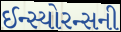
ઈન્સ્યોરન્સની